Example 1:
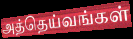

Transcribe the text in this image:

அத்தெய்வங்கள்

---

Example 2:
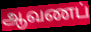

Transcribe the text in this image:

ஆவணப்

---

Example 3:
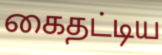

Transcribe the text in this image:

கைதட்டிய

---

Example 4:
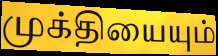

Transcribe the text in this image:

முக்தியையும்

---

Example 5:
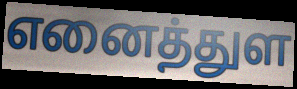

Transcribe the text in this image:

எனைத்துள